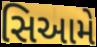
સિઆમે